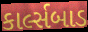
કાર્લ્સબાડ